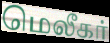
மெலீகர்